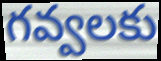
గవ్వలకు